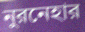
নুরনেহার